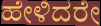
ಹೇಳಿದರೇ